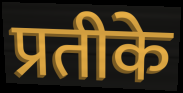
प्रतीके